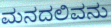
ಮನದಲಿವನು